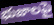
భుజాలపై